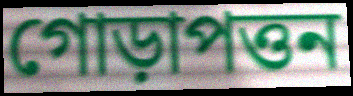
গোড়াপত্তন